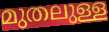
മുതലുള്ള